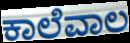
ಕಾಲೆವಾಲ